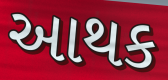
આથક